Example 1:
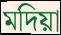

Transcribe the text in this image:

মদিয়া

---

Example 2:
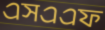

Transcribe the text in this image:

এসএএফ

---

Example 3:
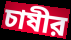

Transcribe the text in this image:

চাষীর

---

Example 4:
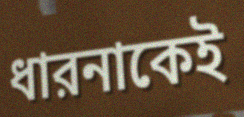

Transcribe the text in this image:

ধারনাকেই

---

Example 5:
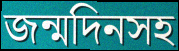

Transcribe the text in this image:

জন্মদিনসহ